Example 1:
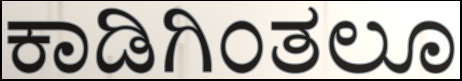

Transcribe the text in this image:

ಕಾಡಿಗಿಂತಲೂ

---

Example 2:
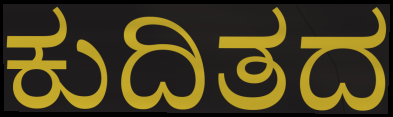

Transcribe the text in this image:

ಕುದಿತದ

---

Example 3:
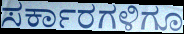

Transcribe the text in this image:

ಸರ್ಕಾರಗಳಿಗೂ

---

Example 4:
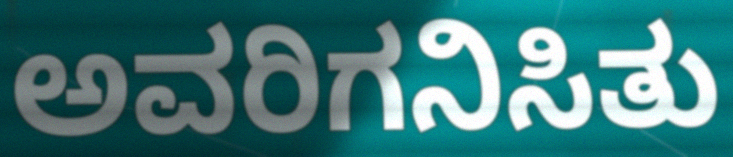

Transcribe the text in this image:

ಅವರಿಗನಿಸಿತು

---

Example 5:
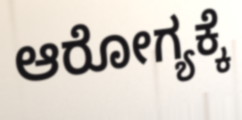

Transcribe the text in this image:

ಆರೋಗ್ಯಕ್ಕೆ